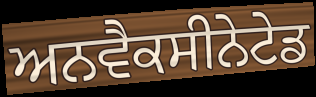
ਅਨਵੈਕਸੀਨੇਟੇਡ